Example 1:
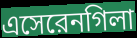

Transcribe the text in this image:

এসেরেনগিলা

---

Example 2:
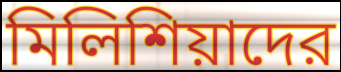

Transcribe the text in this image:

মিলিশিয়াদের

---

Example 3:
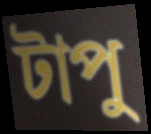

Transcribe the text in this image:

টাপু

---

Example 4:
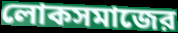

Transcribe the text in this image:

লোকসমাজের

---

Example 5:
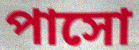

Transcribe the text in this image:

পাসো